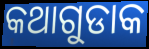
କଥାଗୁଡାକ